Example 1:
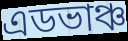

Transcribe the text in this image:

এডভাঞ্চ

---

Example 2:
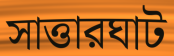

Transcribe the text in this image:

সাত্তারঘাট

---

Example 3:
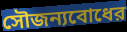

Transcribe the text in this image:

সৌজন্যবোধের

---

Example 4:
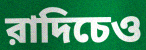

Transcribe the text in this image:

রাদিচেও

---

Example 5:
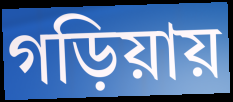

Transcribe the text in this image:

গড়িয়ায়